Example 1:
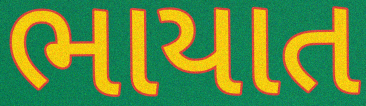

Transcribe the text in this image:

ભાયાત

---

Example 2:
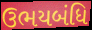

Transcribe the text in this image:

ઉભયબંધિ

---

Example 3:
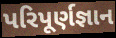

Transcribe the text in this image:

પરિપૂર્ણજ્ઞાન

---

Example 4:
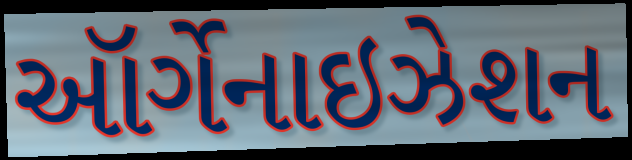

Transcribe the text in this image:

ઑર્ગેનાઇઝેશન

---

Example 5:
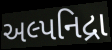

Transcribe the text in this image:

અલ્પનિદ્રા